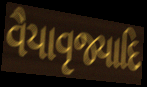
વૈયાવૃજ્યાદિ